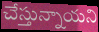
చేస్తున్నాయని